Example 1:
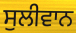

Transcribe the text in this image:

ਸੁਲੀਵਾਨ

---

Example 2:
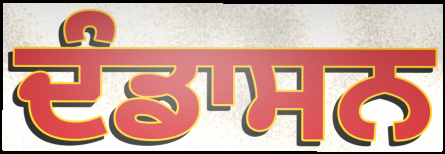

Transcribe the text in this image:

ਦੰਡਾਸਨ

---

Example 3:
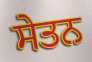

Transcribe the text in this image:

ਸੇਤਨ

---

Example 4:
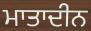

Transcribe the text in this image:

ਮਾਤਾਦੀਨ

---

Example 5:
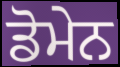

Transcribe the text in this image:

ਡੋਮੇਨ